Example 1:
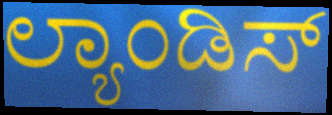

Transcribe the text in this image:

ಲ್ಯಾಂಡಿಸ್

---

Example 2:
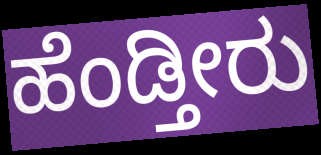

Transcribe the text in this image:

ಹೆಂಡ್ತೀರು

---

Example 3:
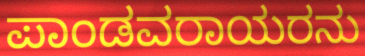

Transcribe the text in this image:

ಪಾಂಡವರಾಯರನು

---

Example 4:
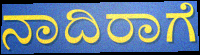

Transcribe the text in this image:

ನಾದಿರಾಗೆ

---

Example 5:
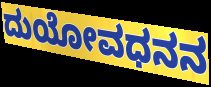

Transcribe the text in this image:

ದುಯೋವಧನನ